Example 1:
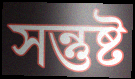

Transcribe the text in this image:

সন্তুষ্ট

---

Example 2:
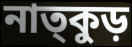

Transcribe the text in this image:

নাত্কুড়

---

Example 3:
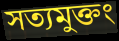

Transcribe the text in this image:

সত্যমুক্তং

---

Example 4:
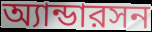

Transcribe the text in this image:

অ্যান্ডারসন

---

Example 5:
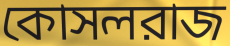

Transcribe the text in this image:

কোসলরাজ